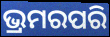
ଭ୍ରମରପରି